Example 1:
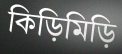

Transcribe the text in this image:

কিড়িমিড়ি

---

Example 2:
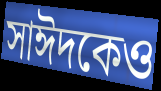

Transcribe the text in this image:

সাঈদকেও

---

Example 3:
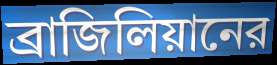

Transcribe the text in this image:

ব্রাজিলিয়ানের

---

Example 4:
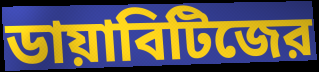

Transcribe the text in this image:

ডায়াবিটিজের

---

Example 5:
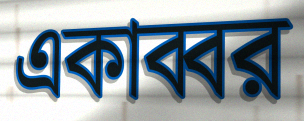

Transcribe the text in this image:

একাব্বর